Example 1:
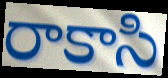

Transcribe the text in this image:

రాకాసి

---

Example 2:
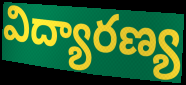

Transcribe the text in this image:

విద్యారణ్య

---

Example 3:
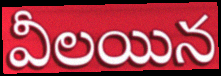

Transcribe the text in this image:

వీలయిన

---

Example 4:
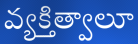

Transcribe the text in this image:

వ్యక్తిత్వాలూ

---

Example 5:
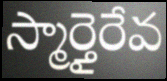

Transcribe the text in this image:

స్మార్తైరేవ